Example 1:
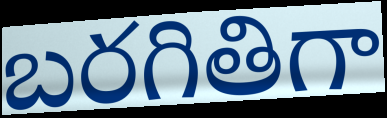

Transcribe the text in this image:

బరగితిగా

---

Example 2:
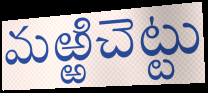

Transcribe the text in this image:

మఱ్ఱిచెట్టు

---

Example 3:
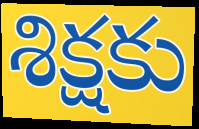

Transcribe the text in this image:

శిక్షకు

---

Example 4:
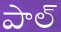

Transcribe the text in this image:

పాల్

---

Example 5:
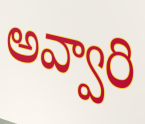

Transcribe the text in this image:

అవ్వారి